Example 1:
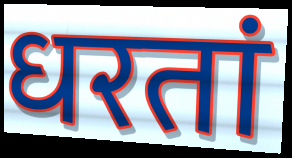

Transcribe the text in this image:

धरतां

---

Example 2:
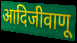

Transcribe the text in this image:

आदिजीवाणू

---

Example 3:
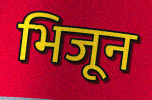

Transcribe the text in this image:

भिजून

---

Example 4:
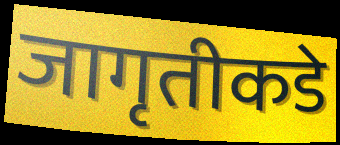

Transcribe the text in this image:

जागृतीकडे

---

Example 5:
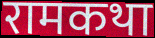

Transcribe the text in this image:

रामकथा